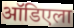
ऑडिएला